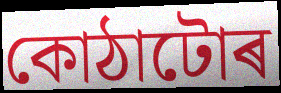
কোঠাটোৰ